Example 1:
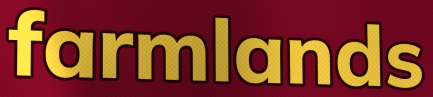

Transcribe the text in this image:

farmlands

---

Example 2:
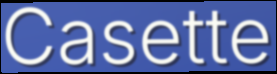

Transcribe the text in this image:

Casette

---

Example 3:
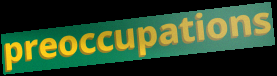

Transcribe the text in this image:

preoccupations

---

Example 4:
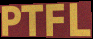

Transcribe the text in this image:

PTFL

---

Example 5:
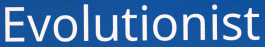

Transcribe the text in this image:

Evolutionist